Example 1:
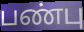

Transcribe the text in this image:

பண்பு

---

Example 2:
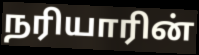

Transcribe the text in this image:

நரியாரின்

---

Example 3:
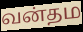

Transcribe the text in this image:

வன்தம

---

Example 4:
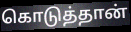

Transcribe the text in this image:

கொடுத்தான்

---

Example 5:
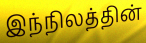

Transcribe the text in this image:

இந்நிலத்தின்